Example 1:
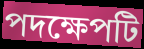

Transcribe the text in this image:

পদক্ষেপটি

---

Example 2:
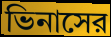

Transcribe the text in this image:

ভিনাসের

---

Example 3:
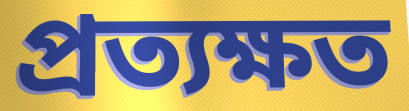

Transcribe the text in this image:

প্রত্যক্ষত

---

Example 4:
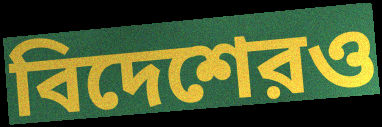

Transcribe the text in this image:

বিদেশেরও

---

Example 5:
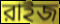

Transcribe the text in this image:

রাইজ